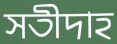
সতীদাহ